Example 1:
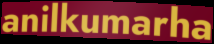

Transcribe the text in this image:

anilkumarha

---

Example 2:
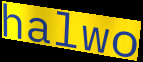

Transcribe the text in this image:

halwo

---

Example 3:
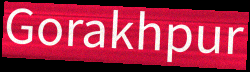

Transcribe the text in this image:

Gorakhpur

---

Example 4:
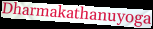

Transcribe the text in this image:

Dharmakathanuyoga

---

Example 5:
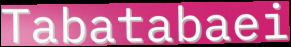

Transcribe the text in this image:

Tabatabaei